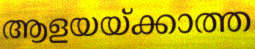
ആളയയ്ക്കാത്ത